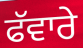
ਫੱਵਾਰੇ